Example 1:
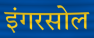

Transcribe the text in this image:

इंगरसोल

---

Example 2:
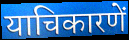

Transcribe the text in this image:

याचिकारणें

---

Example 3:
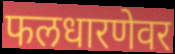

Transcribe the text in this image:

फलधारणेवर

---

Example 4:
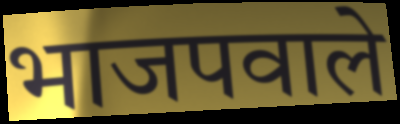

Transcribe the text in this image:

भाजपवाले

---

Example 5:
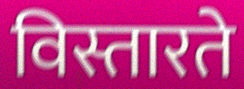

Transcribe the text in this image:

विस्तारते